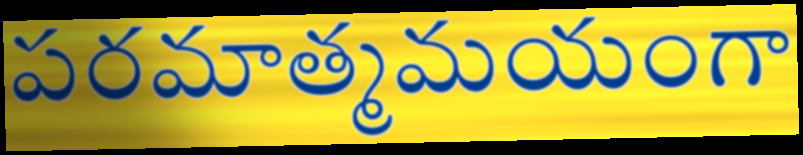
పరమాత్మమయంగా